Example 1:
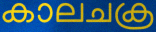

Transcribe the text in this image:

കാലചക്ര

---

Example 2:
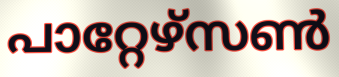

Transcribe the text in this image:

പാറ്റേഴ്സൺ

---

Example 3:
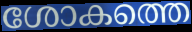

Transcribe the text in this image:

ശോകത്തെ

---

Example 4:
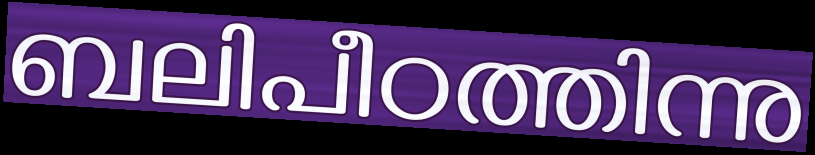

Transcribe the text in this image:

ബലിപീഠത്തിന്നു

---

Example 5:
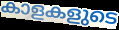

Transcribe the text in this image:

കാളകളുടെ